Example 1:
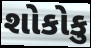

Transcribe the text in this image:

શોકોકુ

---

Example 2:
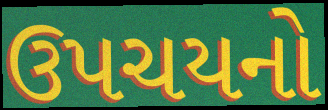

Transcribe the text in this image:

ઉપચયનો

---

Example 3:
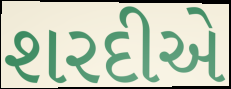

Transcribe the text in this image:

શરદીએ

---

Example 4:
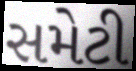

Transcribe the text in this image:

સમેટી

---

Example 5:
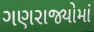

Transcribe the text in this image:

ગણરાજ્યોમાં